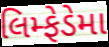
લિમ્ફેડેમા